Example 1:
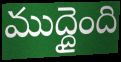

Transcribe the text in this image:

ముద్దైంది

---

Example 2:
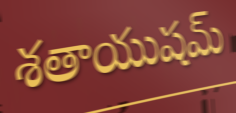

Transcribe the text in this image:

శతాయుషమ్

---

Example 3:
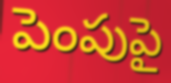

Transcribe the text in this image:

పెంపుపై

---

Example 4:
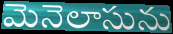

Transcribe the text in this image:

మెనెలాసును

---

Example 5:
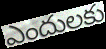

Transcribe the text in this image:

ఎందులకు